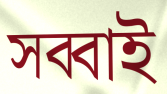
সব্বাই